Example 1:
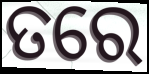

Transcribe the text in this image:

ତରେ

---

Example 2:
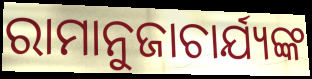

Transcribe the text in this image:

ରାମାନୁଜାଚାର୍ଯ୍ୟଙ୍କ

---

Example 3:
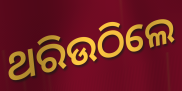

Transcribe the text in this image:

ଥରିଉଠିଲେ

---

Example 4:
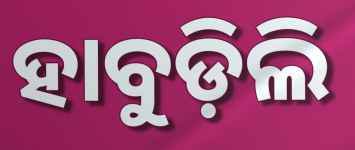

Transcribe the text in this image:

ହାବୁଡ଼ିଲି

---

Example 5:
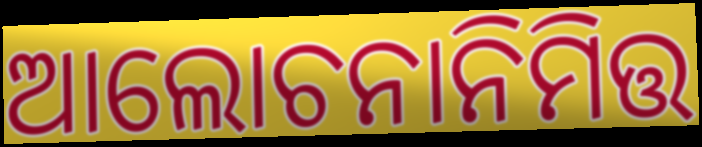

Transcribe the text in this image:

ଆଲୋଚନାନିମିତ୍ତ